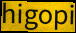
higopi